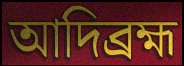
আদিব্রহ্ম